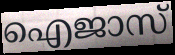
ഐജാസ്